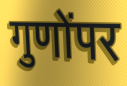
गुणोंपर